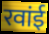
रवांई